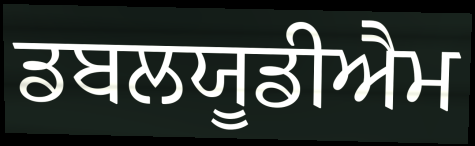
ਡਬਲਯੂਡੀਐਮ